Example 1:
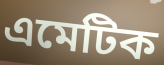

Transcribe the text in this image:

এমেটিক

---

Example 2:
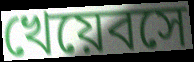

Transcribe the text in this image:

খেয়েবসে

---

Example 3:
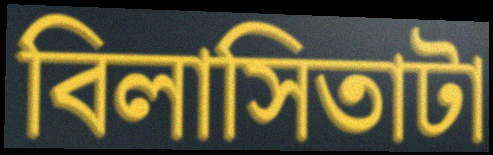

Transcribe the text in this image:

বিলাসিতাটা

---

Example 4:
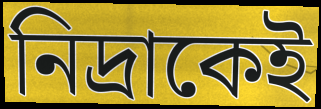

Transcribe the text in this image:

নিদ্রাকেই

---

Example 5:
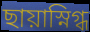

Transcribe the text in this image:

ছায়াস্নিগ্ধ